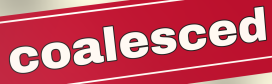
coalesced